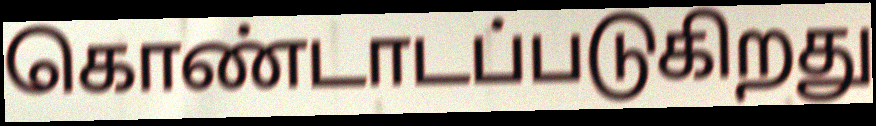
கொண்டாடப்படுகிறது